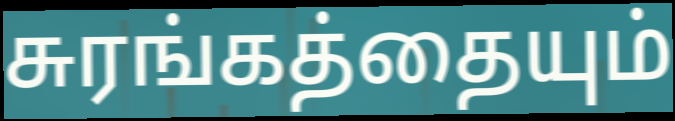
சுரங்கத்தையும்